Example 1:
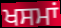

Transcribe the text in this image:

ਖਸਮਾਂ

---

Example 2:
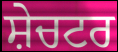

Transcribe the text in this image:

ਸ਼ੇਚਟਰ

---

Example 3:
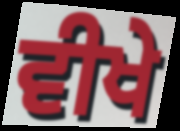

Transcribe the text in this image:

ਵੀਖੇ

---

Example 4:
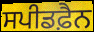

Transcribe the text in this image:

ਸਪੀਡਫ਼ੈਨ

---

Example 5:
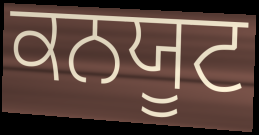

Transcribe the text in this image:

ਕਨਯੂਟ